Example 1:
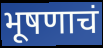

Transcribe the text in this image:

भूषणाचं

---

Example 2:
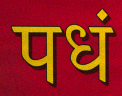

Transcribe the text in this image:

पधं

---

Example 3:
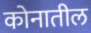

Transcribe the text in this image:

कोनातील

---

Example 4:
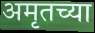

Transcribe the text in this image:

अमृतच्या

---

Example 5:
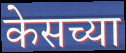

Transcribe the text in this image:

केसच्या